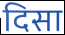
दिसा